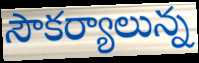
సౌకర్యాలున్న